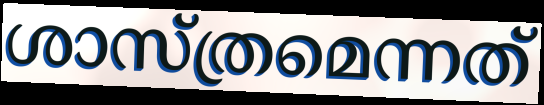
ശാസ്ത്രമെന്നത്